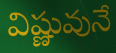
విష్ణువునే